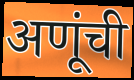
अणूंची